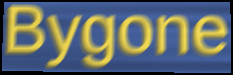
Bygone